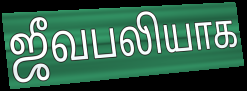
ஜீவபலியாக